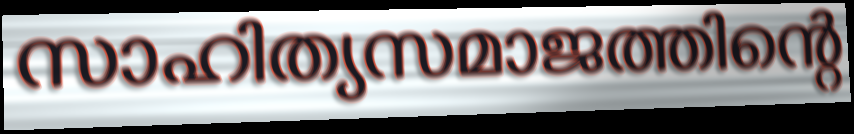
സാഹിത്യസമാജത്തിന്റെ